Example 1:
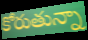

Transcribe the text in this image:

కోరుతున్నా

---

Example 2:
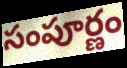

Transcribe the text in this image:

సంపూర్ణం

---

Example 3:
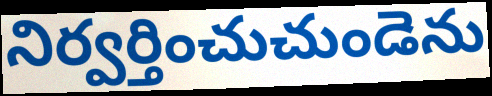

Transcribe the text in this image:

నిర్వర్తించుచుండెను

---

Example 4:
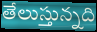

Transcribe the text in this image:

తేలుస్తున్నది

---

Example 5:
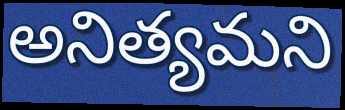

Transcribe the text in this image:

అనిత్యమని